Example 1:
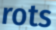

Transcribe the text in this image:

rots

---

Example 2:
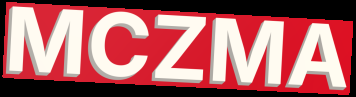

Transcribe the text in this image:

MCZMA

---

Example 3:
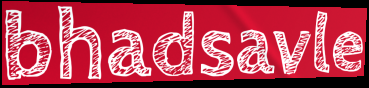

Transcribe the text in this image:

bhadsavle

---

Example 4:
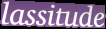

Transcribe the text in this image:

lassitude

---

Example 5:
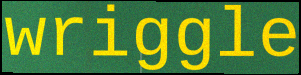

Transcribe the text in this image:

wriggle